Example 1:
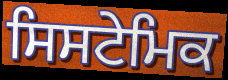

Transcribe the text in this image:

ਸਿਸਟੇਮਿਕ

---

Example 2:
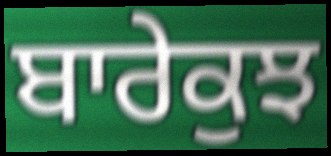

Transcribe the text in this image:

ਬਾਰੇਕੁਝ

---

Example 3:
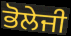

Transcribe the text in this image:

ਭੋਲੇਜੀ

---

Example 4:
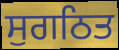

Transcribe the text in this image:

ਸੁਗਠਿਤ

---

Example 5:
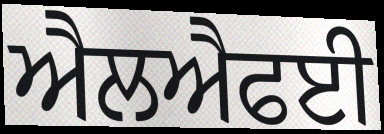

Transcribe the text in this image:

ਐਲਐਫਈ